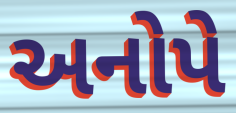
અનોપે